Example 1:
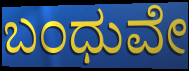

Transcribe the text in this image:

ಬಂಧುವೇ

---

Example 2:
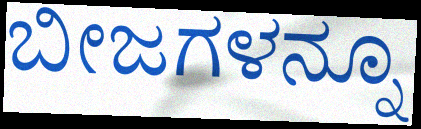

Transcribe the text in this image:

ಬೀಜಗಳನ್ನೂ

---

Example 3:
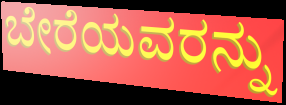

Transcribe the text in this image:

ಬೇರೆಯವರನ್ನು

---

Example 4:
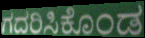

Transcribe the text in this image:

ಗದರಿಸಿಕೊಂಡ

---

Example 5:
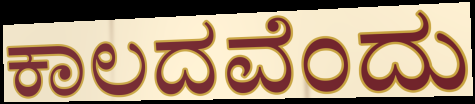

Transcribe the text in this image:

ಕಾಲದವೆಂದು